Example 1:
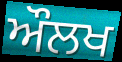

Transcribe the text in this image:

ਔਲਖ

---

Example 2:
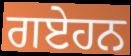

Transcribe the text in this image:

ਗਏਹਨ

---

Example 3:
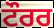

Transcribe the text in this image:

ਟੌਰਰ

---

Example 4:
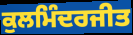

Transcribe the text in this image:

ਕੁਲਮਿੰਦਰਜੀਤ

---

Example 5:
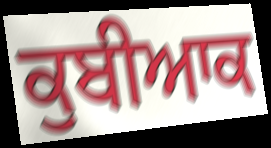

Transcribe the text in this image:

ਕੁਬੀਆਕ